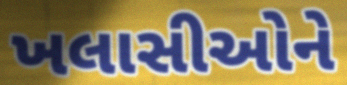
ખલાસીઓને